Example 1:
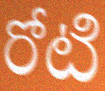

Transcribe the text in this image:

రోటి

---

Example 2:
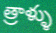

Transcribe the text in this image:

త్రాళ్ళు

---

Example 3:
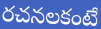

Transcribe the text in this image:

రచనలకంటే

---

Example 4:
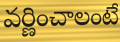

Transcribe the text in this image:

వర్ణించాలంటే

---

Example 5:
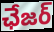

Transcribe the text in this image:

ఛేజర్